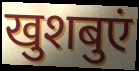
खुशबुएं